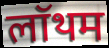
लॉथम